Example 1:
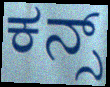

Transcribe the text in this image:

ಕನ್ಸ್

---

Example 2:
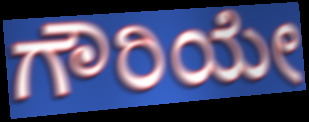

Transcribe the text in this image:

ಗೌರಿಯೇ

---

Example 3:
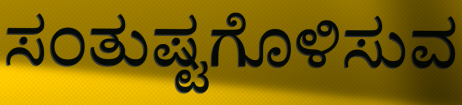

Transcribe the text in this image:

ಸಂತುಷ್ಟಗೊಳಿಸುವ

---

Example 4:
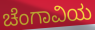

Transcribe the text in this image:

ಚೆಂಗಾವಿಯ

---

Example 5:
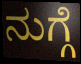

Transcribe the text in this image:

ನುಗ್ಗೆ